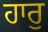
ਹਾਰੁ